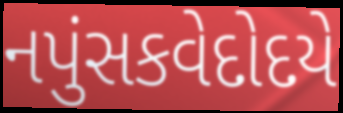
નપુંસકવેદોદયે